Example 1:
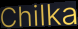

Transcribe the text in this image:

Chilka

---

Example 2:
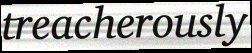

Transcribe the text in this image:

treacherously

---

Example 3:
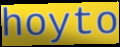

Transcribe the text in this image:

hoyto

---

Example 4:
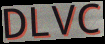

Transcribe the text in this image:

DLVC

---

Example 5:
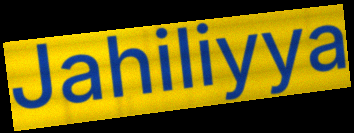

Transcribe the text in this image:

Jahiliyya